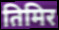
तिमिर